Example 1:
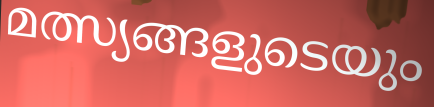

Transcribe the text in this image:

മത്സ്യങ്ങളുടെയും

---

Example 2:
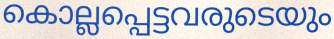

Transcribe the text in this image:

കൊല്ലപ്പെട്ടവരുടെയും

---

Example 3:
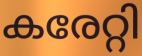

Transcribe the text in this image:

കരേറ്റി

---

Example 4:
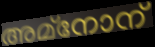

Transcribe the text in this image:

അമ്നോന്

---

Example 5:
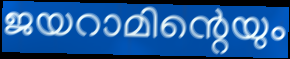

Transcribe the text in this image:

ജയറാമിന്റെയും